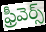
ఫ్రీవెర్స్